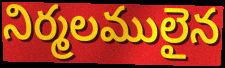
నిర్మలములైన